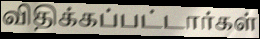
விதிக்கப்பட்டார்கள்